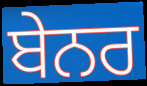
ਬੇਨਰ